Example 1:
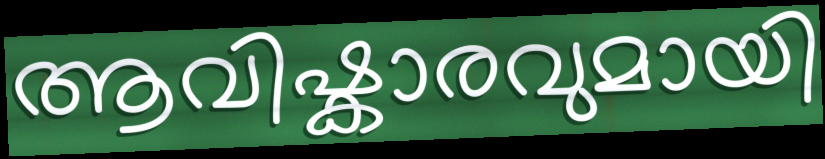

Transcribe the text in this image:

ആവിഷ്കാരവുമായി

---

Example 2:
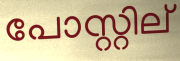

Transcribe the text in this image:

പോസ്റ്റില്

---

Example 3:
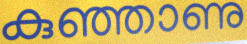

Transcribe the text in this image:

കുഞ്ഞാണു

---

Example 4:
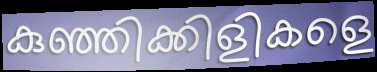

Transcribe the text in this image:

കുഞ്ഞിക്കിളികളെ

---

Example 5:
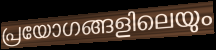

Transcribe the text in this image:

പ്രയോഗങ്ങളിലെയും